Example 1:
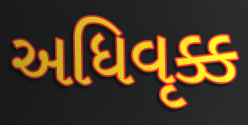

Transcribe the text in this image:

અધિવૃક્ક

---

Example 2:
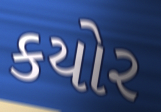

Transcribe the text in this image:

કયોર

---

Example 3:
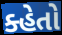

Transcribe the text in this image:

ક્હેતો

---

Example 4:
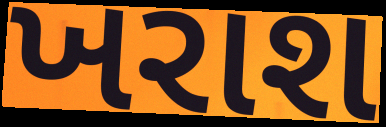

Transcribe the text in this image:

ખરાશ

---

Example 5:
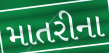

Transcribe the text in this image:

માતરીના